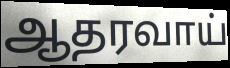
ஆதரவாய்